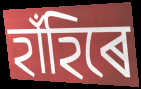
হাঁহিৰে